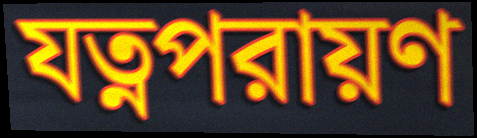
যত্নপরায়ণ